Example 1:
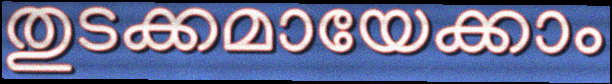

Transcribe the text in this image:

തുടക്കമായേക്കാം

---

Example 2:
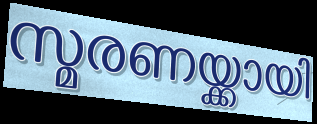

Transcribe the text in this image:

സ്മരണയ്ക്കായി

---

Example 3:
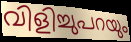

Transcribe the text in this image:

വിളിച്ചുപറയും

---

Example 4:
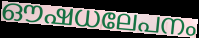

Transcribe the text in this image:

ഔഷധലേപനം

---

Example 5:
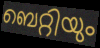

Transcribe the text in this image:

ബെറ്റിയും